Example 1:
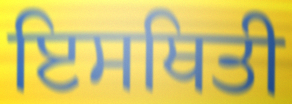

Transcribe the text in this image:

ਇਸਥਿਤੀ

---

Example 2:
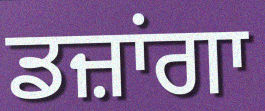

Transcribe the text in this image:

ਡਜ਼ਾਂਗਾ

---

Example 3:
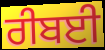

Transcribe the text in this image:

ਰੀਬਈ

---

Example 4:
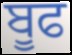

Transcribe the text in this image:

ਬੂਫ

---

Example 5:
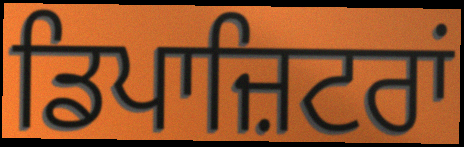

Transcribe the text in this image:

ਡਿਪਾਜ਼ਿਟਰਾਂ